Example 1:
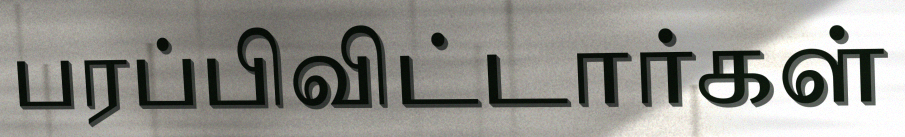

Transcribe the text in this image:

பரப்பிவிட்டார்கள்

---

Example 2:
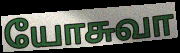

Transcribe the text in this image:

யோசுவா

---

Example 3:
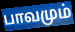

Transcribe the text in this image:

பாவமும்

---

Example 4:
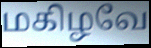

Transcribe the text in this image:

மகிழவே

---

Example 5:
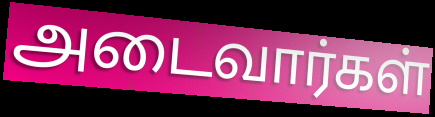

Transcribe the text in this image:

அடைவார்கள்